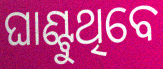
ଘାଣ୍ଟୁଥିବେ